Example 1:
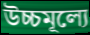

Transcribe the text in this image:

উচ্চমূল্যে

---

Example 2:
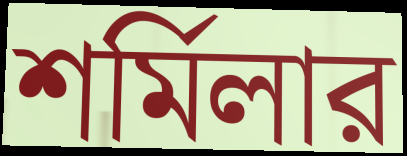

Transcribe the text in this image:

শর্মিলার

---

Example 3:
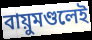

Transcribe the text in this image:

বায়ুমণ্ডলেই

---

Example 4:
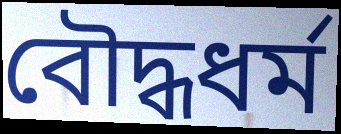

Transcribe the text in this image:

বৌদ্ধধর্ম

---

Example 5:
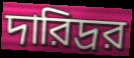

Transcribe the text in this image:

দারিদ্রর